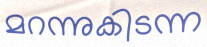
മറന്നുകിടന്ന